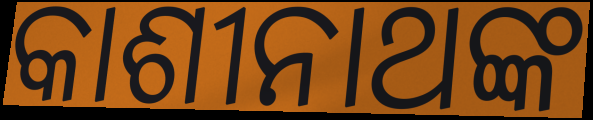
କାଶୀନାଥଙ୍କ